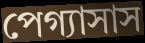
পেগ্যাসাস